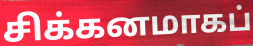
சிக்கனமாகப்